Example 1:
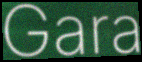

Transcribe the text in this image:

Gara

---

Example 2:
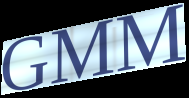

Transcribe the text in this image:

GMM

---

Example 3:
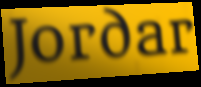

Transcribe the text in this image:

Jordar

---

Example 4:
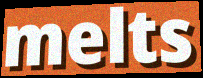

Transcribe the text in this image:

melts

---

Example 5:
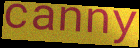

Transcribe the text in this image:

canny